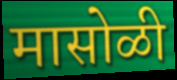
मासोळी